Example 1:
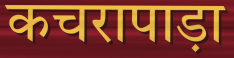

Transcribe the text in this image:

कचरापाड़ा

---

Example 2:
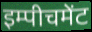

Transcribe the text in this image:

इम्पीचमेंट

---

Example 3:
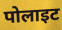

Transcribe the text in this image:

पोलाइट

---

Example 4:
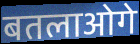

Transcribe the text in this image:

बतलाओगे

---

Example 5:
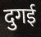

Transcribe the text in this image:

दुगई